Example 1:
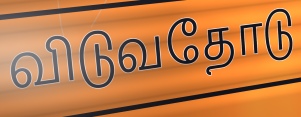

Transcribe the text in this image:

விடுவதோடு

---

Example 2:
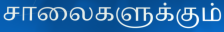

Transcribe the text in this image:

சாலைகளுக்கும்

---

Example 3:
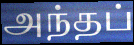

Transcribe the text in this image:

அந்தப்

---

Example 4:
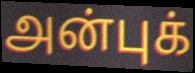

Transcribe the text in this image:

அன்புக்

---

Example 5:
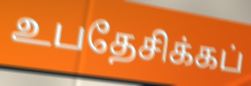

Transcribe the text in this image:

உபதேசிக்கப்